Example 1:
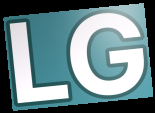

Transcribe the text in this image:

LG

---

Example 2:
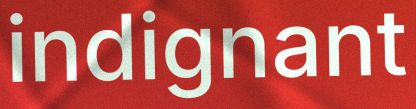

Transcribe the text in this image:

indignant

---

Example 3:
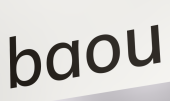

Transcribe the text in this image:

baou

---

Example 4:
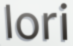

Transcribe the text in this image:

lori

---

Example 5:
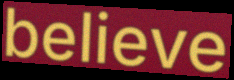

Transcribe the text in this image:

believe